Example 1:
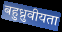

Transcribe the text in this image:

बहुध्रुवीयता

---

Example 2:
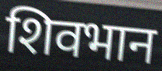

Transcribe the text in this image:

शिवभान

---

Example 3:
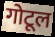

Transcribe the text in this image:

गोटूल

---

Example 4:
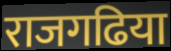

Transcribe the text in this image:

राजगढिया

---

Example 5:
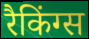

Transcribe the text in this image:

रैकिंग्स